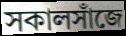
সকালসাঁজে